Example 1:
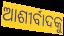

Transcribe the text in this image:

ଆଶୀର୍ବାଦକୁ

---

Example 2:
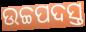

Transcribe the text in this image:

ଉଚ୍ଚପଦସ୍ତ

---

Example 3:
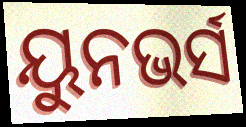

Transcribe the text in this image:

ୟୁନଭର୍ସ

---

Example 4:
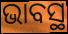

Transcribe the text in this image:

ଭାବସ୍ଥ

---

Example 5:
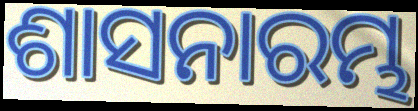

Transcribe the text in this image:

ଶାସନାରମ୍ଭ